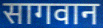
सागवान